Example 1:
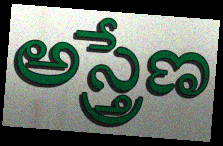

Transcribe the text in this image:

అస్త్రేణ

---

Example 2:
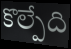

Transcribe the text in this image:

కొల్పేది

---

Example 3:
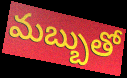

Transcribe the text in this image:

మబ్బుతో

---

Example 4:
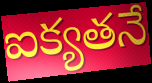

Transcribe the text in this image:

ఐక్యతనే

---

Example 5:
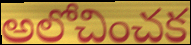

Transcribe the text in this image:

అలోచించక